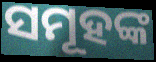
ସମୂହଙ୍କ